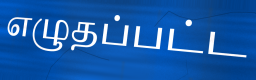
எழுதப்பட்ட